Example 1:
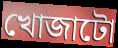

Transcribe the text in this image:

খোজাটো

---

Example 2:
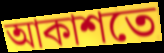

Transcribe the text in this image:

আকাশতে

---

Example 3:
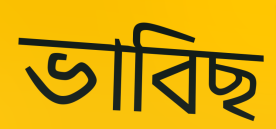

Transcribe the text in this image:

ভাবিছ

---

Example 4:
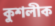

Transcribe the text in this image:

কুশলীক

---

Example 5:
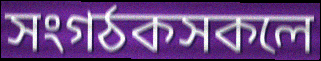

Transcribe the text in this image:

সংগঠকসকলে